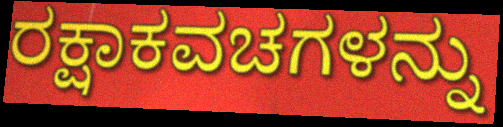
ರಕ್ಷಾಕವಚಗಳನ್ನು